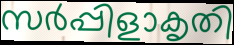
സർപ്പിളാകൃതി